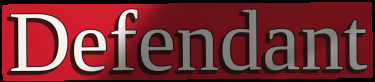
Defendant